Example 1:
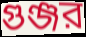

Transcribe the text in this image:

গুঞ্জর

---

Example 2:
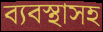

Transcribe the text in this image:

ব্যবস্থাসহ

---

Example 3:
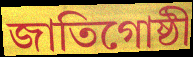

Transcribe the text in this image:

জাতিগোষ্ঠী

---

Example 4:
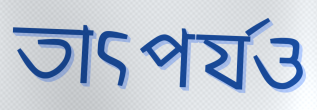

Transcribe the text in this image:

তাৎপর্যও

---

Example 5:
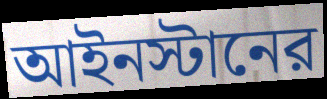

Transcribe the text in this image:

আইনস্টানের